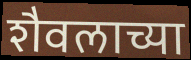
शैवलाच्या